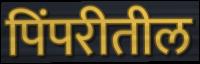
पिंपरीतील